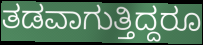
ತಡವಾಗುತ್ತಿದ್ದರೂ